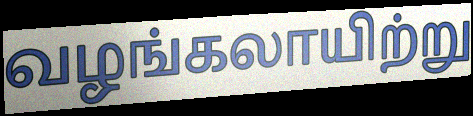
வழங்கலாயிற்று